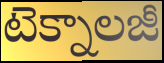
టెక్నాలజీ